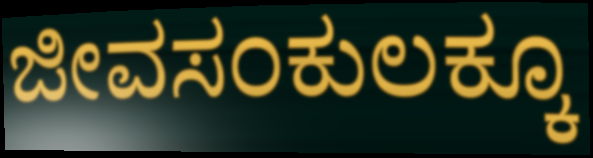
ಜೀವಸಂಕುಲಕ್ಕೂ